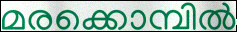
മരക്കൊമ്പിൽ